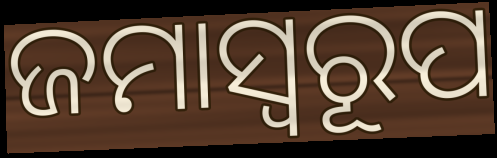
ଜମାସ୍ବରୂପ